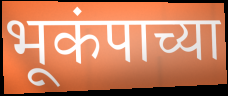
भूकंपाच्या